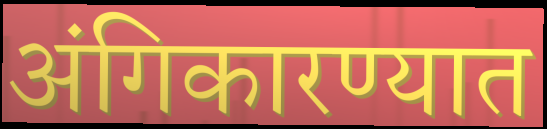
अंगिकारण्यात